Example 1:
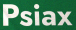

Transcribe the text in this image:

Psiax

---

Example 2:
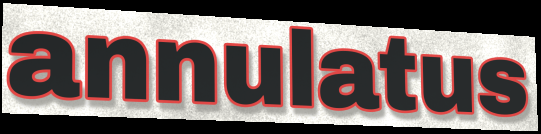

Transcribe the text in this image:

annulatus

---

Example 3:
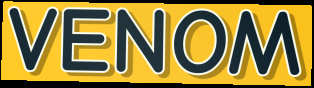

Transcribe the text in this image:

VENOM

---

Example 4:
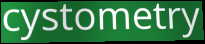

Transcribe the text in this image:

cystometry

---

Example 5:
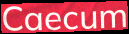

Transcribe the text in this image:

Caecum